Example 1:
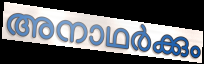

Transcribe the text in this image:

അനാഥർക്കും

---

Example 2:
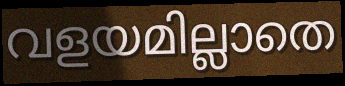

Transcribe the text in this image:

വളയമില്ലാതെ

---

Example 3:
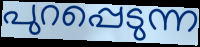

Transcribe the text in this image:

പുറപ്പെടുന്ന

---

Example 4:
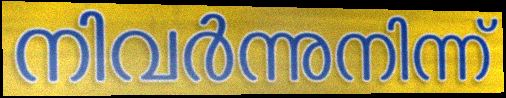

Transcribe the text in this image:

നിവർന്നുനിന്ന്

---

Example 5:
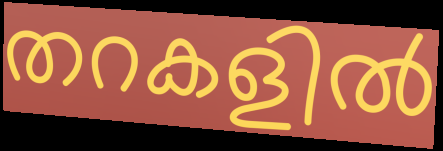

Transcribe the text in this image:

തറകളിൽ